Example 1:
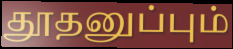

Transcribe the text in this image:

தூதனுப்பும்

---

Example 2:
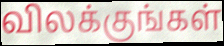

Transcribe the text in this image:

விலக்குங்கள்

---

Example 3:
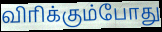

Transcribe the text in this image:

விரிக்கும்போது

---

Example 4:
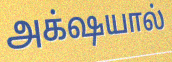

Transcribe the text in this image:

அக்‌ஷயால்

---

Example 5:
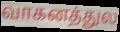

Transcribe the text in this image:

வாகனத்துல